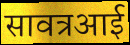
सावत्रआई